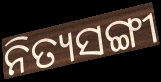
ନିତ୍ୟସଙ୍ଗୀ